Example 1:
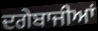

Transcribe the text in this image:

ਦਗੇਬਾਜੀਆਂ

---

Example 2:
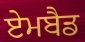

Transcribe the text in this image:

ਏਮਬੈਡ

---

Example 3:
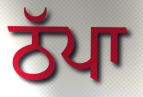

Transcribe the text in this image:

ਠੱਪਾ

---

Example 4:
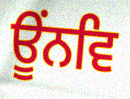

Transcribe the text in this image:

ਊਂਨਵਿ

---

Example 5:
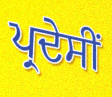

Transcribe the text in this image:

ਪ੍ਰਦੇਸੀਂ